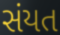
સંયત